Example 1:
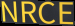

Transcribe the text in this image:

NRCE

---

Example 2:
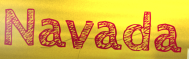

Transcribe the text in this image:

Navada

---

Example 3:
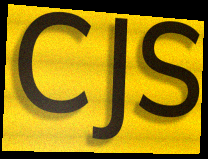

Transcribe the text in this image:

CJS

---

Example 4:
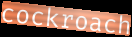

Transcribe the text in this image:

cockroach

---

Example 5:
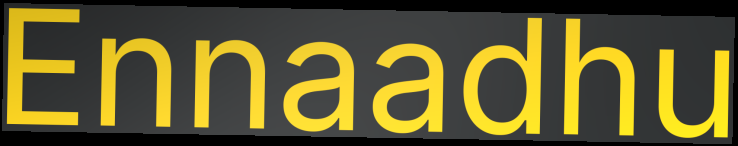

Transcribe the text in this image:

Ennaadhu